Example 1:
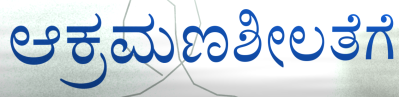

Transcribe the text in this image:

ಆಕ್ರಮಣಶೀಲತೆಗೆ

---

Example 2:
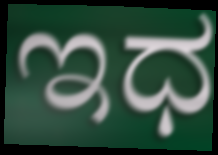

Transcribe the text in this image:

ಇಧ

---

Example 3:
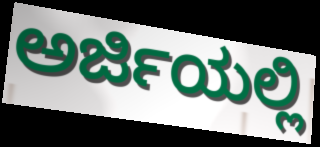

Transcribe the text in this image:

ಅರ್ಜಿಯಲ್ಲಿ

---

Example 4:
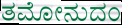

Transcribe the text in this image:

ತಮೋನುದಂ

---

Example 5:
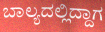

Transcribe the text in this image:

ಬಾಲ್ಯದಲ್ಲಿದ್ದಾಗ